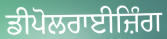
ਡੀਪੋਲਰਾਈਜ਼ਿੰਗ